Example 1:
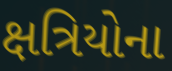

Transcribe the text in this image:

ક્ષત્રિયોના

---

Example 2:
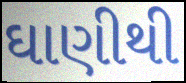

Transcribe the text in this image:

ઘાણીથી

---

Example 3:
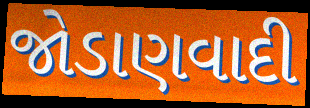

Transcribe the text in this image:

જોડાણવાદી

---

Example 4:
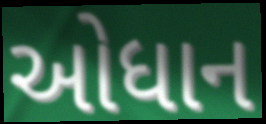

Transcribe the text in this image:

ઓધાન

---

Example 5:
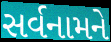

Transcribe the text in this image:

સર્વનામને